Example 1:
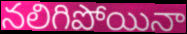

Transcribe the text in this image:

నలిగిపోయినా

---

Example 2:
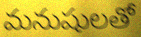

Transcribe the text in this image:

మనుషులతో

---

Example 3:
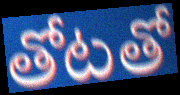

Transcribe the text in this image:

తోటతో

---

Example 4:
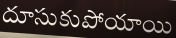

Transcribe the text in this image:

దూసుకుపోయాయి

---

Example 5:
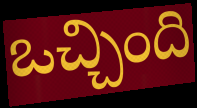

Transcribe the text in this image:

ఒచ్చింది